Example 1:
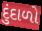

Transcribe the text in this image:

દુંદાળો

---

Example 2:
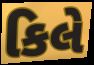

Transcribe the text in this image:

કિલે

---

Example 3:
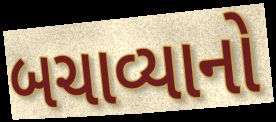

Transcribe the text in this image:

બચાવ્યાનો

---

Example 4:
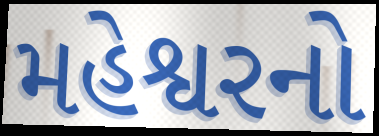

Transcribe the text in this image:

મહેશ્વરનો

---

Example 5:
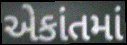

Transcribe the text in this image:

એકાંતમાં